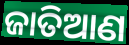
ଜାତିଆଣ